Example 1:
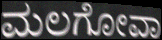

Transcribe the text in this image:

ಮಲಗೋವಾ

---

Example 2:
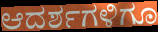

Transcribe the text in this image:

ಆದರ್ಶಗಳಿಗೂ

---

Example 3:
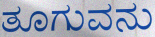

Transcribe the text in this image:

ತೂಗುವನು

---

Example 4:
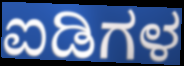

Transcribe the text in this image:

ಐಡಿಗಳ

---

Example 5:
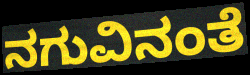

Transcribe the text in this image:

ನಗುವಿನಂತೆ